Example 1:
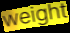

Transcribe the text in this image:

weight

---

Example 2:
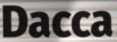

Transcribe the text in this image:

Dacca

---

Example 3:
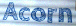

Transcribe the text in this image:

Acorn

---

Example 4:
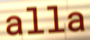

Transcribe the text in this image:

alla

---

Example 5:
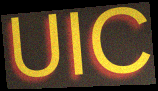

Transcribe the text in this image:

UIC